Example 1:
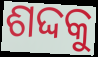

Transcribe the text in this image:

ଶଦ୍ଦକୁ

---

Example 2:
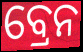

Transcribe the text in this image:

ବ୍ରେନ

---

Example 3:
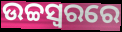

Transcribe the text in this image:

ଉଚ୍ଚସ୍ୱରରେ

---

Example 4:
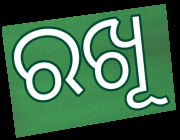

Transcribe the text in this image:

ରଖୂ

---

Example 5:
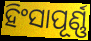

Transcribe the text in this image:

ହିଂସାପୂର୍ଣ୍ଣ